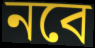
নবে